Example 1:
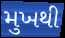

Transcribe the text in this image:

મુખથી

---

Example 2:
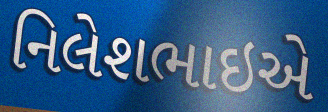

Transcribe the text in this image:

નિલેશભાઇએ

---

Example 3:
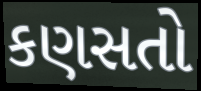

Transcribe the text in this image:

કણસતો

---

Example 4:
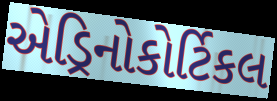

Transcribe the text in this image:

એડ્રિનોકોર્ટિકલ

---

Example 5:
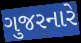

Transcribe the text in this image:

ગુજરનારે